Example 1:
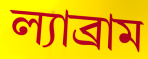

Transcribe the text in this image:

ল্যাব্রাম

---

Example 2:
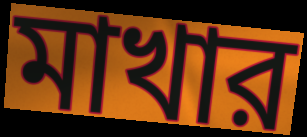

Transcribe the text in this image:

মাখার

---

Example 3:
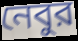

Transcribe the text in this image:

নেবুর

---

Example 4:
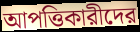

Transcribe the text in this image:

আপত্তিকারীদের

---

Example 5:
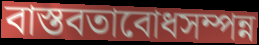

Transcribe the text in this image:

বাস্তবতাবোধসম্পন্ন